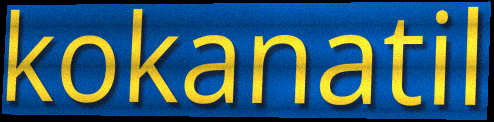
kokanatil